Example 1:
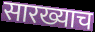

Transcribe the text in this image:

सारख्याच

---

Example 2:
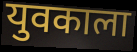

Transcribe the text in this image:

युवकाला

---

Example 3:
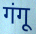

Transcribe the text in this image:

गंगू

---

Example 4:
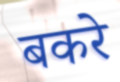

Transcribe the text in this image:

बकरे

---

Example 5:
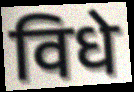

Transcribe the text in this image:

विधे